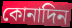
কোনাদিন